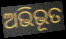
ଅଭିଭୂତ